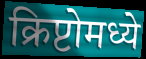
क्रिप्टोमध्ये